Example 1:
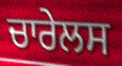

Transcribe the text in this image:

ਚਾਰੇਲਸ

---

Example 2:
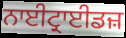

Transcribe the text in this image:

ਨਾਈਟ੍ਰਾਈਡਜ਼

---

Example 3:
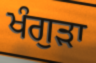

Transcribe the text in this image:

ਖੰਗੁੜਾ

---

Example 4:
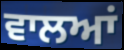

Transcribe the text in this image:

ਵਾਲਆਂ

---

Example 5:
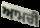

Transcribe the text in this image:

ਆਮਚੀ